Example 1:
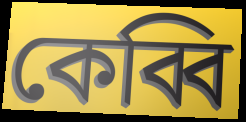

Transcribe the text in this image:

কেব্বি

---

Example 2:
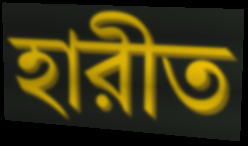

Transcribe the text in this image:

হারীত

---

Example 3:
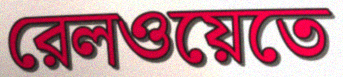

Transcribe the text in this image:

রেলওয়েতে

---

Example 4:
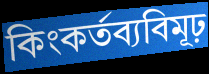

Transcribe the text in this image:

কিংকর্তব্যবিমূঢ়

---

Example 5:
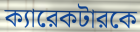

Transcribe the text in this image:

ক্যারেকটারকে